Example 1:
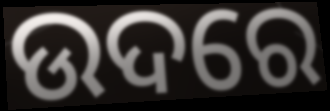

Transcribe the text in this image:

ଉଦରେ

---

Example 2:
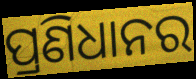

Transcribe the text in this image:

ପ୍ରଣିଧାନର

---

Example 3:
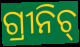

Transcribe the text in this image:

ଗ୍ରୀନିଚ୍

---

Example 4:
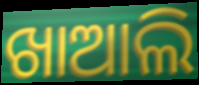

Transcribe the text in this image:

ଖାଆଲି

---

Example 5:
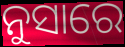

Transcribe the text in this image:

ନୁସାରେ